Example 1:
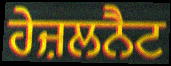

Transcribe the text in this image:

ਹੇਜ਼ਲਨੈਟ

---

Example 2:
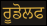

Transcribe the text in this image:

ਰੂਡੋਲਫ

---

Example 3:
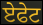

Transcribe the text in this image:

ਏਫੇਟ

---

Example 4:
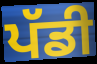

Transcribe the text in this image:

ਪੱਡੀ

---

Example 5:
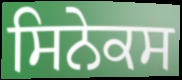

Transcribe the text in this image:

ਸਿਨੇਕਸ